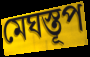
মেঘস্তূপ